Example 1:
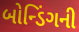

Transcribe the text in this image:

બોન્ડિંગની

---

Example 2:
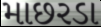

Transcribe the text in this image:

માછરડા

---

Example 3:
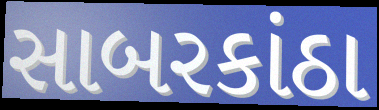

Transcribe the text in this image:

સાબરકાંઠા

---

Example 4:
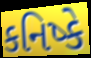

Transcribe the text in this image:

કનિષ્કે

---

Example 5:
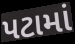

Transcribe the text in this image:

પટામાં